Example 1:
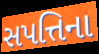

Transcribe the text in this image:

સપત્તિના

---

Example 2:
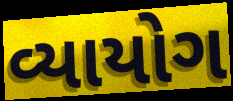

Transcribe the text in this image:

વ્યાયોગ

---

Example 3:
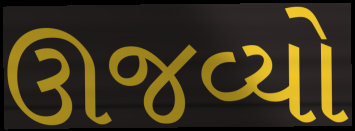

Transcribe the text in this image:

ઊજવ્યો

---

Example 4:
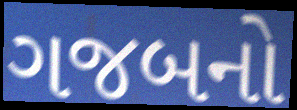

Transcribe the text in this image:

ગજબનો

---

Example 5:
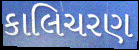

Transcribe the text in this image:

કાલિચરણ